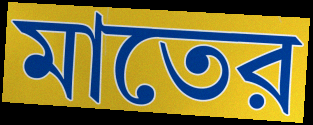
মাতের